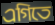
এগিতে